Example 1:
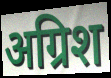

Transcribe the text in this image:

अग्रिश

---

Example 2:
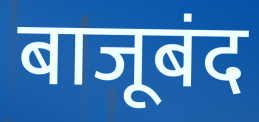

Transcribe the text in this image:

बाजूबंद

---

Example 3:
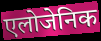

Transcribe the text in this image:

एलोजेनिक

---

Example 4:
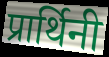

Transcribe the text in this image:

प्रार्थिनी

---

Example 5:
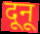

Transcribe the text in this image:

दूनू